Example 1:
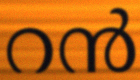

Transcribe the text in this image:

റൻ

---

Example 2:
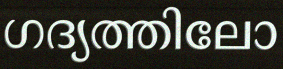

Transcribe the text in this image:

ഗദ്യത്തിലോ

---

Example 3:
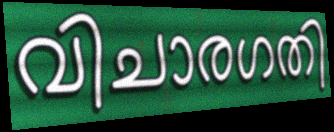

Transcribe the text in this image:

വിചാരഗതി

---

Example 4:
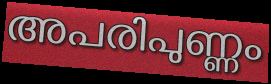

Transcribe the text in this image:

അപരിപുണ്ണം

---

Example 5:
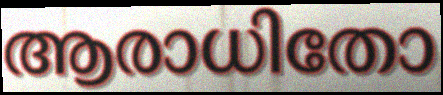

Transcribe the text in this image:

ആരാധിതോ